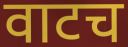
वाटच